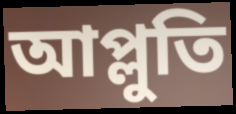
আপ্লুতি